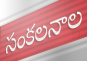
సంకలనాల